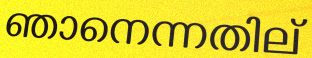
ഞാനെന്നതില്